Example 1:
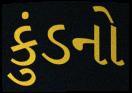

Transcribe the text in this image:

કુંડનો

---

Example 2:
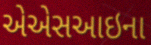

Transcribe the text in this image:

એએસઆઇના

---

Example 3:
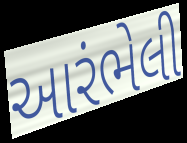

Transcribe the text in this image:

આરંભેલી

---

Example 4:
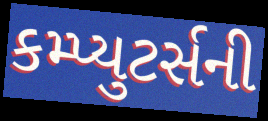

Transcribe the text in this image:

કમ્પ્યુટર્સની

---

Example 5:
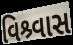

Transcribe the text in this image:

વિશ્ર્વાસ